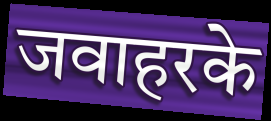
जवाहरके